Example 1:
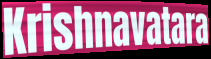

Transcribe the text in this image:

Krishnavatara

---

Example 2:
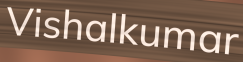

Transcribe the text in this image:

Vishalkumar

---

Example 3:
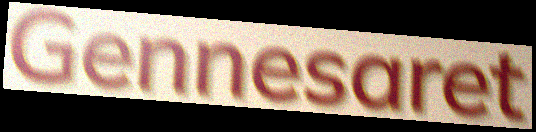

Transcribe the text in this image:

Gennesaret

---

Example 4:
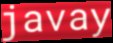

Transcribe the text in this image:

javay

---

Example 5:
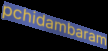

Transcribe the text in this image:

pchidambaram